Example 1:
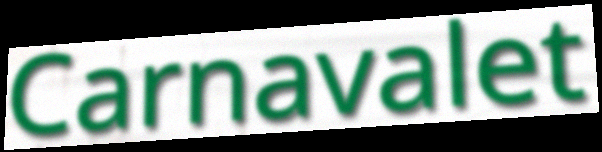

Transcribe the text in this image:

Carnavalet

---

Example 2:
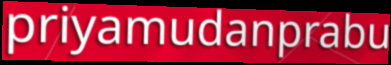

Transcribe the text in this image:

priyamudanprabu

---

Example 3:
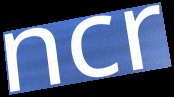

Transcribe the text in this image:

ncr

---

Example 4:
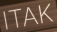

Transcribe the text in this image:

ITAK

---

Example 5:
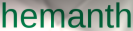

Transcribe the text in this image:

hemanth